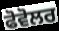
ਫੋਵੋਲਰ